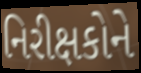
નિરીક્ષકોને